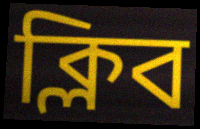
ক্লিব